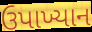
ઉપાખ્યાન